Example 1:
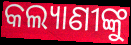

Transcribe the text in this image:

କଲ୍ୟାଣୀଙ୍କୁ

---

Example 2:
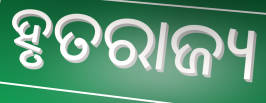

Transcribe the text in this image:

ହୃତରାଜ୍ୟ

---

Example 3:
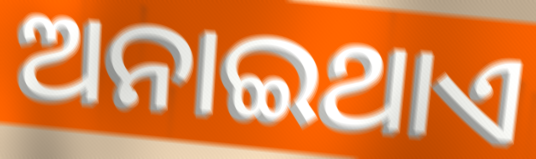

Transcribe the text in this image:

ଅନାଇଥାଏ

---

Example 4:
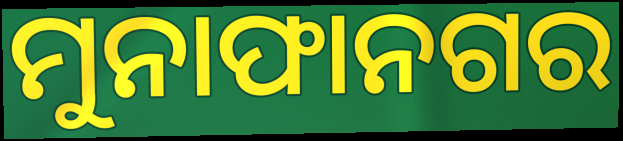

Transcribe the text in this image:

ମୁନାଫାନଗର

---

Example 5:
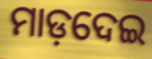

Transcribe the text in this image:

ମାଡ଼ଦେଇ